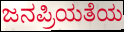
ಜನಪ್ರಿಯತೆಯ